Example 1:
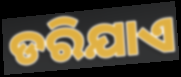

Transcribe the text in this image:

ଡରିଯାଏ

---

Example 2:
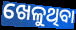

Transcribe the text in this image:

ଖେଳୁଥିବା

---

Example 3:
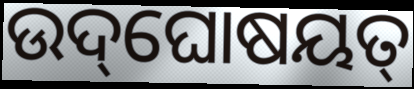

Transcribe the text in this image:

ଉଦ୍‌ଘୋଷୟତ୍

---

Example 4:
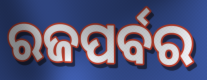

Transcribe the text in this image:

ରଜପର୍ବର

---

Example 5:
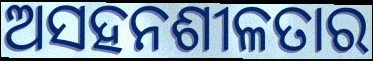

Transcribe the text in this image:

ଅସହନଶୀଳତାର